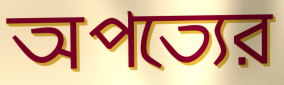
অপত্যের